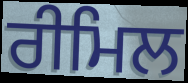
ਰੀਮਿਲ